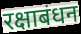
रक्षाबंधन